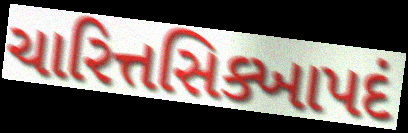
ચારિત્તસિક્ખાપદં